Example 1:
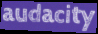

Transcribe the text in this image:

audacity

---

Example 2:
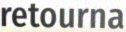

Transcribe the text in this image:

retourna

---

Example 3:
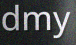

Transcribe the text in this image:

dmy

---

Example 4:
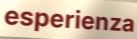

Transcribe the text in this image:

esperienza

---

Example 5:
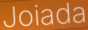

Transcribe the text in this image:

Joiada